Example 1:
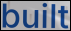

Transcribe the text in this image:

built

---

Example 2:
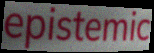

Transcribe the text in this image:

epistemic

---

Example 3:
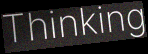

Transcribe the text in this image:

Thinking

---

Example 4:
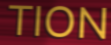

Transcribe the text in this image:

TION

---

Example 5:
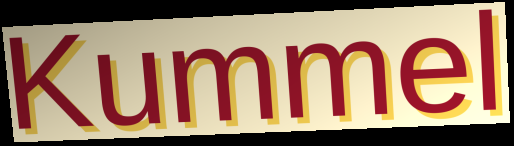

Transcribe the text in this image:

Kummel